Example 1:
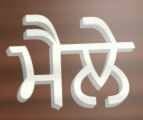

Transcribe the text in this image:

ਮੈਲੇ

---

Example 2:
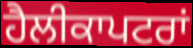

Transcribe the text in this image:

ਹੈਲੀਕਾਪਟਰਾਂ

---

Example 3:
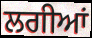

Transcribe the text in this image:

ਲਗੀਆਂ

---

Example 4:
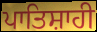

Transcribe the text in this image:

ਪਾਤਿਸ਼ਾਹੀ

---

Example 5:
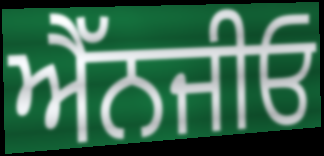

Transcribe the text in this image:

ਐੱਨਜੀਓ